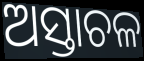
ଅସ୍ତାଚଳ